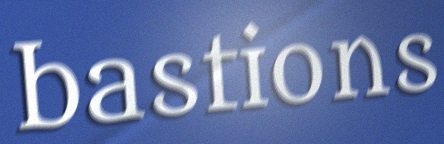
bastions